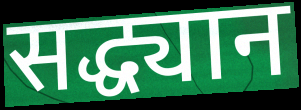
सद्ध्यान